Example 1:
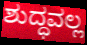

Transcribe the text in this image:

ಶುದ್ಧವಲ್ಲ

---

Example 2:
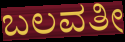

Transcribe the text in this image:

ಬಲವತೀ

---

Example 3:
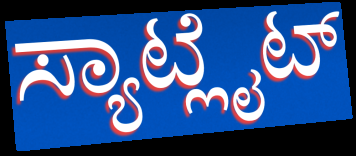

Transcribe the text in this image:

ಸ್ಯಾಟ್ಲೈಟ್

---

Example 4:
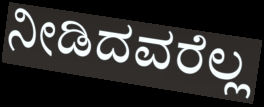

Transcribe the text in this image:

ನೀಡಿದವರೆಲ್ಲ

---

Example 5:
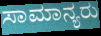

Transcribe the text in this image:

ಸಾಮಾನ್ಯರು